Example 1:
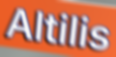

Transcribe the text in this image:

Altilis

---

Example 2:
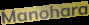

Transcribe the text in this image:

Manohara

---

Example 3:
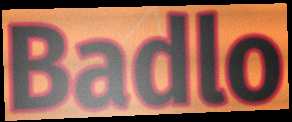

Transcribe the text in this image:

Badlo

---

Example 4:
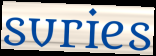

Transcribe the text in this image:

suries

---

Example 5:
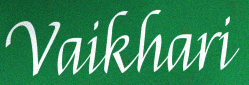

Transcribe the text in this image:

Vaikhari